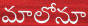
మాలోనూ